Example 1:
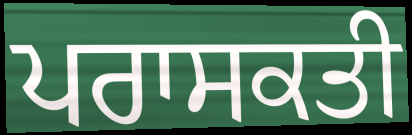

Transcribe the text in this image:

ਪਰਾਸਕਤੀ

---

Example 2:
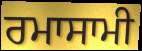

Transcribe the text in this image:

ਰਮਾਸਾਮੀ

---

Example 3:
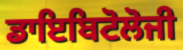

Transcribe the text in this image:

ਡਾਇਬਿਟੋਲੋਜੀ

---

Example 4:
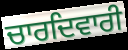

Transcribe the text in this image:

ਚਾਰਦਿਵਾਰੀ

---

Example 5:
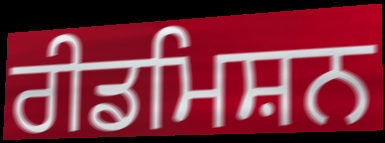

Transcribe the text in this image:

ਰੀਡਮਿਸ਼ਨ